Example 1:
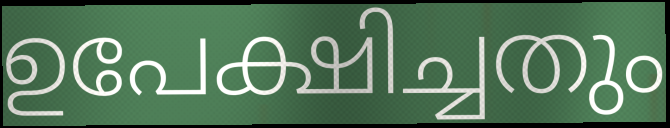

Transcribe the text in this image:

ഉപേക്ഷിച്ചതും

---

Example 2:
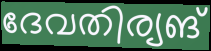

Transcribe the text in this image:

ദേവതിര്യങ്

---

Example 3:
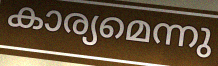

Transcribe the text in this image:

കാര്യമെന്നു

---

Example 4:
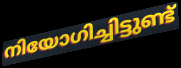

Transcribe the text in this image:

നിയോഗിച്ചിട്ടുണ്ട്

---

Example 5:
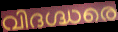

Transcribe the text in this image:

വിദഗ്ദ്ധരെ